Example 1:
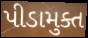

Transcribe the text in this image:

પીડામુક્ત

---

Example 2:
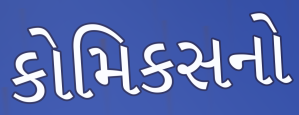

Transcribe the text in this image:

કોમિકસનો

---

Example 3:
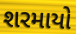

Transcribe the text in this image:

શરમાયો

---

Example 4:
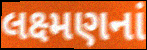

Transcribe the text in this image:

લક્ષ્મણનાં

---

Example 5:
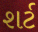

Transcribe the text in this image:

શર્ટ